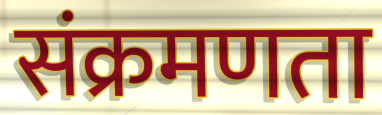
संक्रमणता